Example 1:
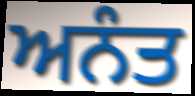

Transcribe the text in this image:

ਅਨੰਤ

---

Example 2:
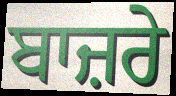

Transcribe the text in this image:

ਬਾਜ਼ਰੇ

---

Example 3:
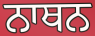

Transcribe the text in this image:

ਨਾਥਨ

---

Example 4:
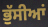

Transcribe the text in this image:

ਭੁੱਸੀਆਂ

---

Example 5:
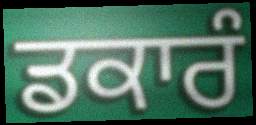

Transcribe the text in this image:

ਡਕਾਰੰ